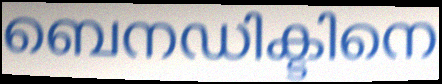
ബെനഡിക്ടിനെ